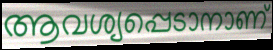
ആവശ്യപ്പെടാനാണ്